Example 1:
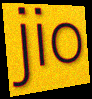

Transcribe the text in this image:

jio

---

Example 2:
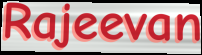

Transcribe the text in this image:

Rajeevan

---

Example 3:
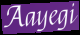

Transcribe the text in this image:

Aayegi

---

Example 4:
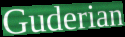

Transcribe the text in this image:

Guderian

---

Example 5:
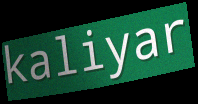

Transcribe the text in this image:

kaliyar